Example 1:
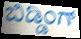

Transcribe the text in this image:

ಬಿಡ್ಡಿಂಗ್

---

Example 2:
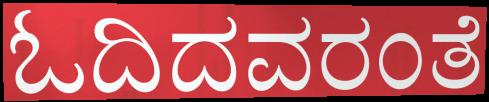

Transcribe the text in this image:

ಓದಿದವರಂತೆ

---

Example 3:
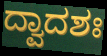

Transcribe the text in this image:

ದ್ವಾದಶಃ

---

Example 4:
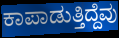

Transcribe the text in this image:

ಕಾಪಾಡುತ್ತಿದ್ದೆವು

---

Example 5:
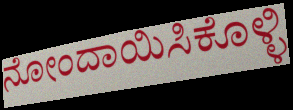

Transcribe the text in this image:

ನೋಂದಾಯಿಸಿಕೊಳ್ಳಿ